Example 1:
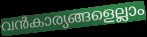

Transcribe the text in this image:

വൻകാര്യങ്ങളെല്ലാം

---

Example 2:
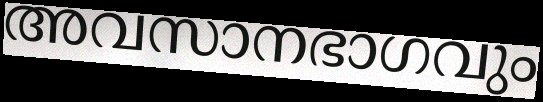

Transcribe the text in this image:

അവസാനഭാഗവും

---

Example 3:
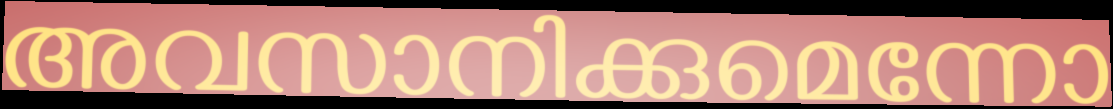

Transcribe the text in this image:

അവസാനിക്കുമെന്നോ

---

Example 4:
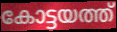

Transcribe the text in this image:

കോട്ടയത്ത്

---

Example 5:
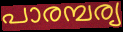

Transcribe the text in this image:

പാരമ്പര്യ